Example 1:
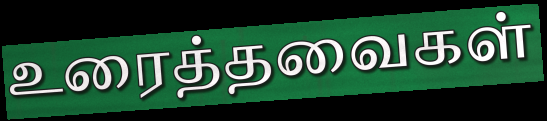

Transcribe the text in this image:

உரைத்தவைகள்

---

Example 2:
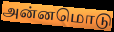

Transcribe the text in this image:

அன்னமொடு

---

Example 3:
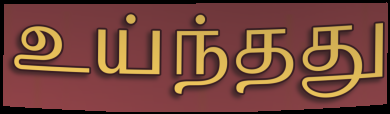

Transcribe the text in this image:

உய்ந்தது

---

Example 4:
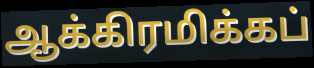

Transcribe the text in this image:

ஆக்கிரமிக்கப்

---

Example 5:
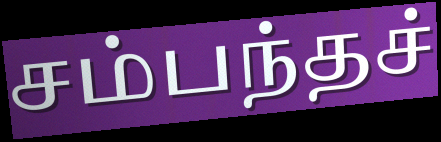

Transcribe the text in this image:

சம்பந்தச்